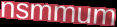
nsmmum